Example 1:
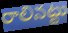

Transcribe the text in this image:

రాలినట్టు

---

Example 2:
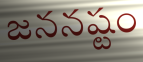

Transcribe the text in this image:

జననష్టం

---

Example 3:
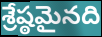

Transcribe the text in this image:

శ్రేష్ఠమైనది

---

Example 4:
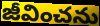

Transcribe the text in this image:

జీవించను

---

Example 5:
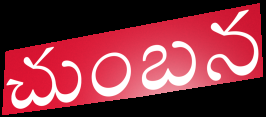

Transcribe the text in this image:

చుంబన